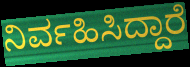
ನಿರ್ವಹಿಸಿದ್ದಾರೆ